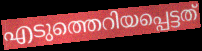
എടുത്തെറിയപ്പെട്ടത്